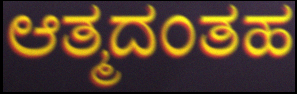
ಆತ್ಮದಂತಹ